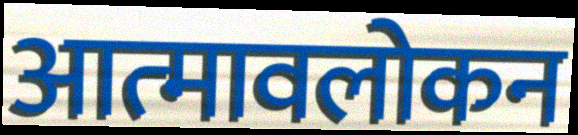
आत्‍मावलोकन